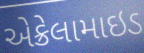
એક્રેલામાઇડ